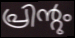
പ്രിന്റും